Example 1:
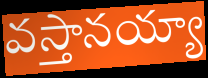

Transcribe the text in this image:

వస్తానయ్యా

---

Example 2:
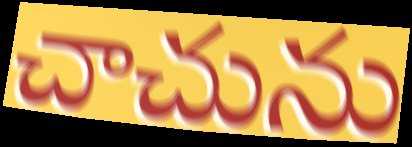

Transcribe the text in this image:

చాచును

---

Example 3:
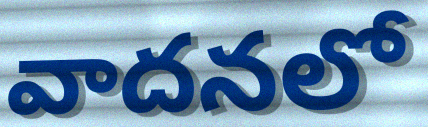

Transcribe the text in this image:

వాదనలో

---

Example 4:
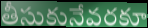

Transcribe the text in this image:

తీసుకునేవరకూ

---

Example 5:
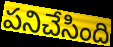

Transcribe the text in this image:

పనిచేసింది